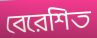
বেরেশিত